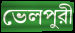
ভেলপুরী